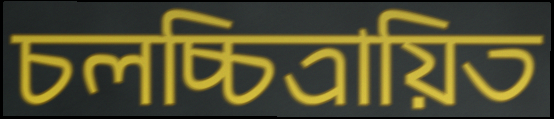
চলচ্চিত্রায়িত